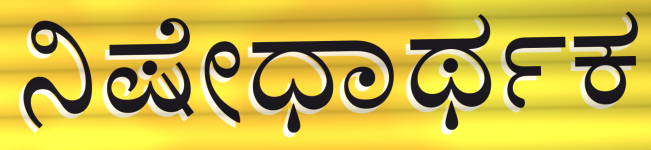
ನಿಷೇಧಾರ್ಥಕ